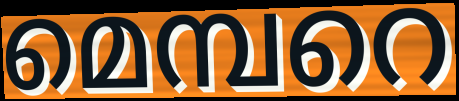
മെമ്പറെ